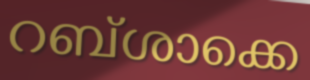
റബ്ശാക്കെ